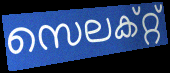
സെലക്റ്റ്